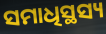
ସମାଧିସ୍ଥସ୍ୟ